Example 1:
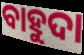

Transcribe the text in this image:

ବାହୁଦା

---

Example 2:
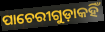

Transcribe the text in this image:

ପାଚେରୀଗୁଡ଼ାକହିଁ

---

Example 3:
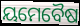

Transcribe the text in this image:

ୟମେବୈଷ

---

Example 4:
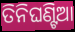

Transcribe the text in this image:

ତିନିଘଣ୍ଟିଆ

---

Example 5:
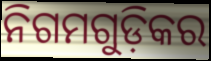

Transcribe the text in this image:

ନିଗମଗୁଡ଼ିକର